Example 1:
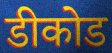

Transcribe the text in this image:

डीकोड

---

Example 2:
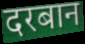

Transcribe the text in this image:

दरबान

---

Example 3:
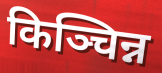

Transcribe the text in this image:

किञ्चिन्न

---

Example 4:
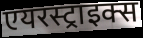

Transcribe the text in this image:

एयरस्ट्राइक्स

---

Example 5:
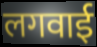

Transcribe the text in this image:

लगवाई